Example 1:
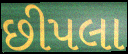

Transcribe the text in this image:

છીપલા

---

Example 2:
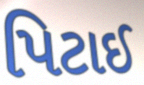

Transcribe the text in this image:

પિટાઈ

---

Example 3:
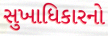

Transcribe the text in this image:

સુખાધિકારનો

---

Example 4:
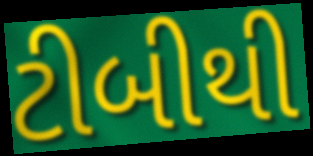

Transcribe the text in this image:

ટીબીથી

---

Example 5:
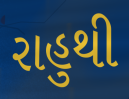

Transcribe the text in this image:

રાહુથી